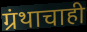
ग्रंथाचाही